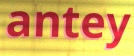
antey